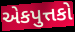
એકપુત્તકો